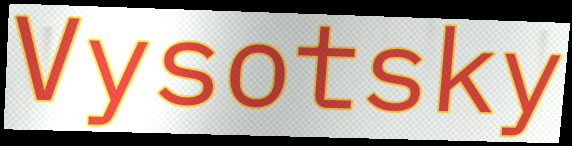
Vysotsky